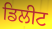
ਡਿਲੀਟ